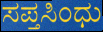
ಸಪ್ತಸಿಂಧು